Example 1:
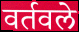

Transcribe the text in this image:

वर्तवले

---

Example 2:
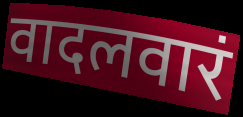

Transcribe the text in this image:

वादलवारं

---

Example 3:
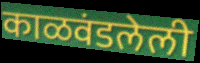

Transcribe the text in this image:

काळवंडलेली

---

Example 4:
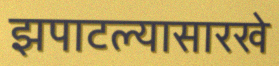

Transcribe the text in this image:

झपाटल्यासारखे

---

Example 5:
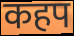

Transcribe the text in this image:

कहप